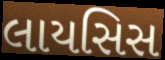
લાયસિસ